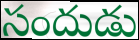
సందుడు